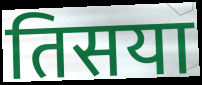
तिसया